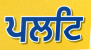
ਪਲਟਿ